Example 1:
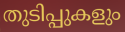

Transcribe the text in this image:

തുടിപ്പുകളും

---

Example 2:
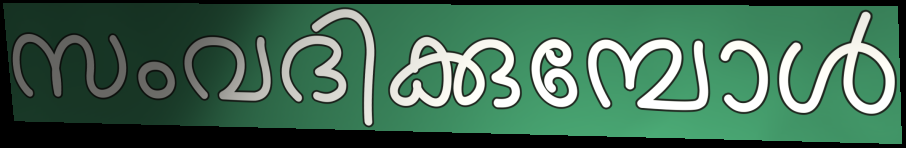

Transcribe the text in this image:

സംവദിക്കുമ്പോൾ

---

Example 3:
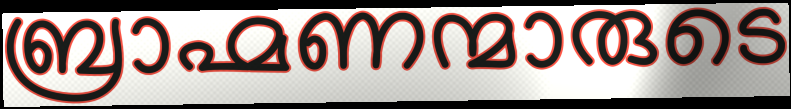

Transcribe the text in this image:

ബ്രാഹ്മണന്മാരുടെ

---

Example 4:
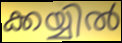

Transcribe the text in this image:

ക്കയ്യിൽ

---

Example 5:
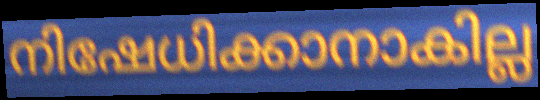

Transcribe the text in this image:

നിഷേധിക്കാനാകില്ല